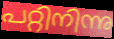
പറ്റിനിന്നു